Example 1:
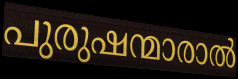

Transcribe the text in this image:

പുരുഷന്മാരാൽ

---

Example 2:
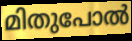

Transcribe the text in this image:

മിതുപോൽ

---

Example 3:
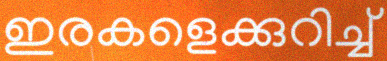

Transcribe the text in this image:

ഇരകളെക്കുറിച്ച്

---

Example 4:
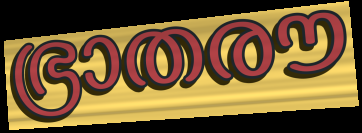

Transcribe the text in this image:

ഭ്രാതരൗ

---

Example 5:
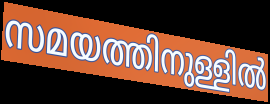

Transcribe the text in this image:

സമയത്തിനുള്ളിൽ